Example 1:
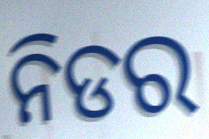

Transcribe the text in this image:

ନିଡର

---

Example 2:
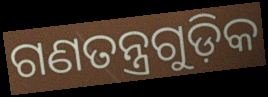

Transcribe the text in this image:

ଗଣତନ୍ତ୍ରଗୁଡ଼ିକ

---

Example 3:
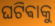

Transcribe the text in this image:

ଘଟିଵାକୁ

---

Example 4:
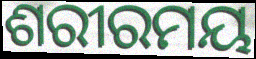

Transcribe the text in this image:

ଶରୀରମୟ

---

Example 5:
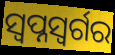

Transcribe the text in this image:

ସ୍ୱପ୍ନସ୍ୱର୍ଗର